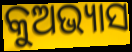
କୁଅଭ୍ୟାସ